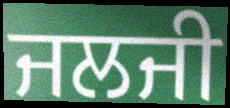
ਜਲਜੀ